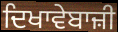
ਦਿਖਾਵੇਬਾਜ਼ੀ